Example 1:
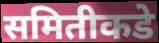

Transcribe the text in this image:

समितीकडे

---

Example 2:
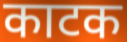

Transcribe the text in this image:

काटक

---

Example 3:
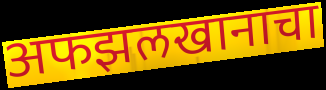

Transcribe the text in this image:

अफझलखानाचा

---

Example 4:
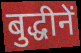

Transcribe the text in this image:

बुद्धीनें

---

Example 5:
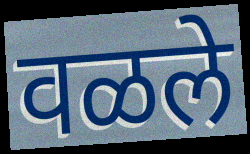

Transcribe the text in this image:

वळले